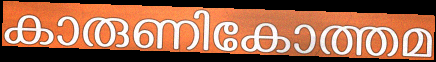
കാരുണികോത്തമ